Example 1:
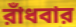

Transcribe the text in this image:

রাঁধবার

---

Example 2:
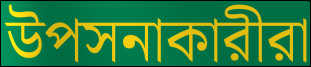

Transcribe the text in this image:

উপসনাকারীরা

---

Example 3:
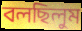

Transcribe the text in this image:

বলছিলুম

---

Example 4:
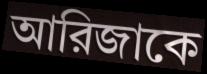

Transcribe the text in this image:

আরিজাকে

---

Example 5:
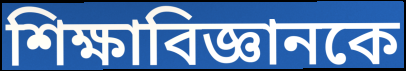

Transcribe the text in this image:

শিক্ষাবিজ্ঞানকে